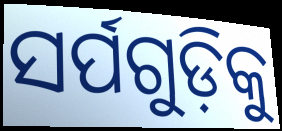
ସର୍ପଗୁଡ଼ିକୁ